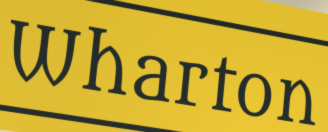
Wharton